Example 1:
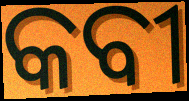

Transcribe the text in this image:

କବୀ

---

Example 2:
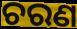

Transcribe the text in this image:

ଚରଣ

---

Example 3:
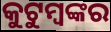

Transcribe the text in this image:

କୁଟୁମ୍ବଙ୍କର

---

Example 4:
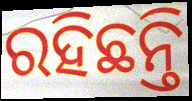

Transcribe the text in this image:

ରହିଛନ୍ତି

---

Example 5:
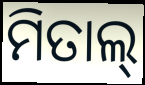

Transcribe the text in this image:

ମିତାଲ୍